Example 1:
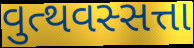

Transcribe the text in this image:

વુત્થવસ્સત્તા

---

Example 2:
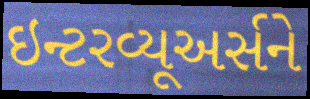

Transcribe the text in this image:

ઇન્ટરવ્યૂઅર્સને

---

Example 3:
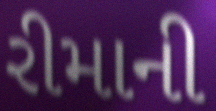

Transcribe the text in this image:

રીમાની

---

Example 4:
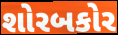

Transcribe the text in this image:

શોરબકોર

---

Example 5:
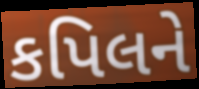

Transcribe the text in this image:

કપિલને